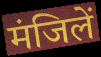
मंजिलें